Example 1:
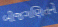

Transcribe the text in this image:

બીજગણિતને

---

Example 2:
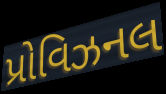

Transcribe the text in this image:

પ્રોવિઝનલ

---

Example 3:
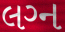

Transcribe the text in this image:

લગ્‍ન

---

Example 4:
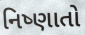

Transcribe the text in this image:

નિષ્ણાતો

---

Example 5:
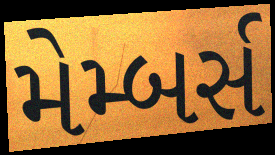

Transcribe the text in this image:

મેમ્બર્સ